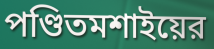
পণ্ডিতমশাইয়ের